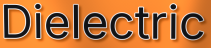
Dielectric